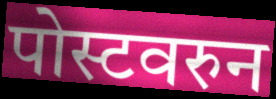
पोस्टवरुन